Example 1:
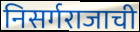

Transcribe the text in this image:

निसर्गराजाची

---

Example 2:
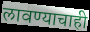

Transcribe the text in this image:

लावण्याचाही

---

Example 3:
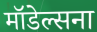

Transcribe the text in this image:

मॉडेल्सना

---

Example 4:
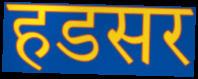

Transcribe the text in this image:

हडसर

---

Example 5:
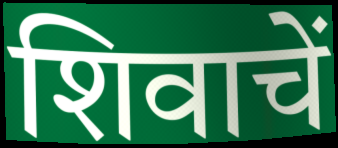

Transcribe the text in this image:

शिवाचें